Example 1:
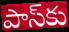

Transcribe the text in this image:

పాస్‌కు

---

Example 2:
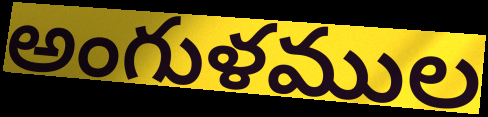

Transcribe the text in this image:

అంగుళముల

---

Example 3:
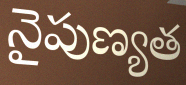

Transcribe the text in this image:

నైపుణ్యత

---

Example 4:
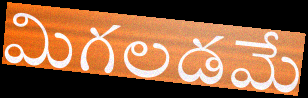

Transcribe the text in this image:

మిగలడమే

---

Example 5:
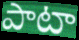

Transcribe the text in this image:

పాటా